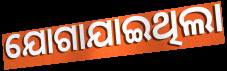
ଯୋଗାଯାଇଥିଲା